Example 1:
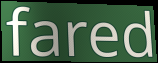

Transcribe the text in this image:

fared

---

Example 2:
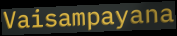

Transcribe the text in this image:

Vaisampayana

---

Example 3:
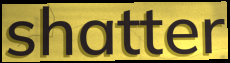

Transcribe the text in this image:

shatter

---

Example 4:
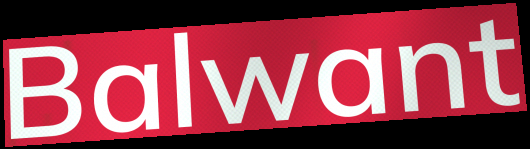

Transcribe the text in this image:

Balwant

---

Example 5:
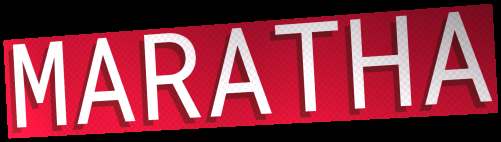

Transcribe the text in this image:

MARATHA